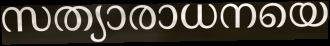
സത്യാരാധനയെ